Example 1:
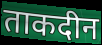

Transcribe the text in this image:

ताकदीन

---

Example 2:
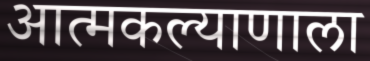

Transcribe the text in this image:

आत्मकल्याणाला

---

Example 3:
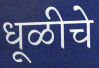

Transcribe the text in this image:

धूळीचे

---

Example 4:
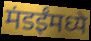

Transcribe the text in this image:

मंडईंमध्ये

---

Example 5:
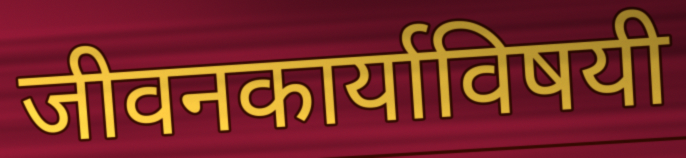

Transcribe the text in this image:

जीवनकार्याविषयी